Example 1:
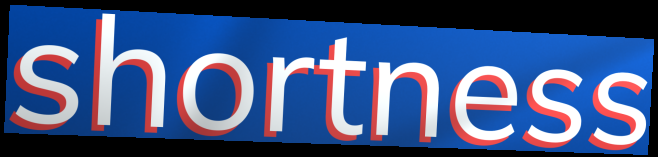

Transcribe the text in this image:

shortness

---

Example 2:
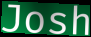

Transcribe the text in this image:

Josh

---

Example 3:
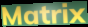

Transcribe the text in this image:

Matrix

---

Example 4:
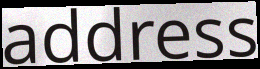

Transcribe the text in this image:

address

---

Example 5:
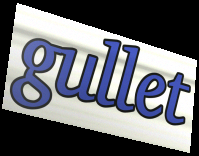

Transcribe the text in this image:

gullet